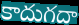
కాదుగదా